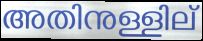
അതിനുള്ളില്